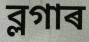
ব্লগাৰ